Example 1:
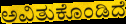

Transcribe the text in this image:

ಅವಿತುಕೊಂಡಿದೆ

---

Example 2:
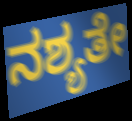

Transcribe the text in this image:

ನಶ್ಯತೇ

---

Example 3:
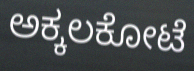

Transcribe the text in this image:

ಅಕ್ಕಲಕೋಟೆ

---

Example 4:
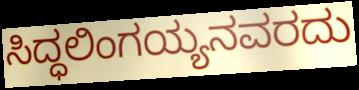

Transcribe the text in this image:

ಸಿದ್ಧಲಿಂಗಯ್ಯನವರದು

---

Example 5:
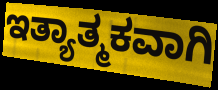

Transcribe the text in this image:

ಇತ್ಯಾತ್ಮಕವಾಗಿ